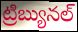
ట్రిబ్యునల్